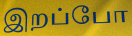
இறப்போ